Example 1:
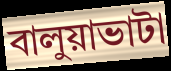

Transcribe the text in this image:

বালুয়াভাটা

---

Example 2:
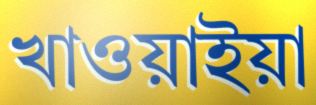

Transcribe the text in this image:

খাওয়াইয়া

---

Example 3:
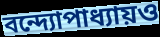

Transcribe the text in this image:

বন্দ্যোপাধ্যায়ও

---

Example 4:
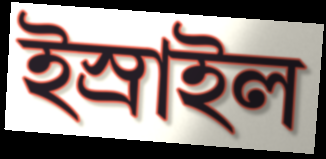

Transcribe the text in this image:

ইস্রাইল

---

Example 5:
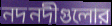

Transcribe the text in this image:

নদনদীগুলোর